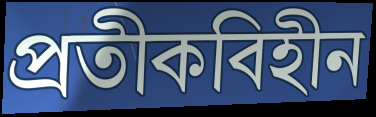
প্রতীকবিহীন